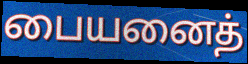
பையனைத்